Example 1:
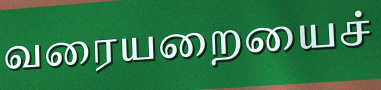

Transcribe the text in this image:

வரையறையைச்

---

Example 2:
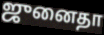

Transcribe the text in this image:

ஜுனைதா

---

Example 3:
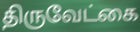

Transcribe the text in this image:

திருவேட்கை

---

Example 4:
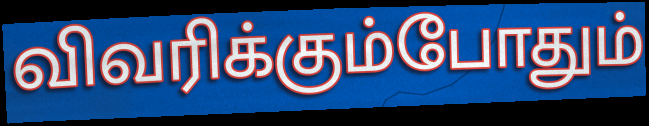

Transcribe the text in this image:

விவரிக்கும்போதும்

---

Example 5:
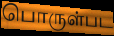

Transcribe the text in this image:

பொருள்பட